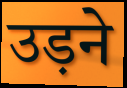
उड़ने